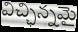
విచ్ఛిన్నమై